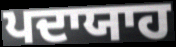
ਪਦਾਯਾਹ